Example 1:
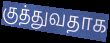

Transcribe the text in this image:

குத்துவதாக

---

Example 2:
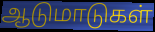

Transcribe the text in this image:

ஆடுமாடுகள்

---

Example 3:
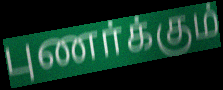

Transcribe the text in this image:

புணர்க்கும்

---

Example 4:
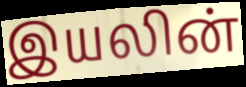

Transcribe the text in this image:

இயலின்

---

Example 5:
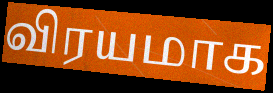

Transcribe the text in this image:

விரயமாக